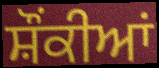
ਸ਼ੌਂਕੀਆਂ